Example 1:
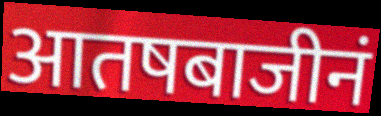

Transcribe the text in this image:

आतषबाजीनं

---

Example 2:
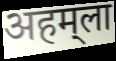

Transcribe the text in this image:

अहम्‌ला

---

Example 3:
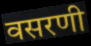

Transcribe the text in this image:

वसरणी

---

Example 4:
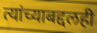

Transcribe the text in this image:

त्यांच्याबद्दलही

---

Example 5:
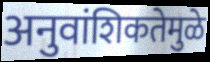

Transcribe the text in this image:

अनुवांशिकतेमुळे